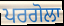
ਪਰਗੋਲਾ